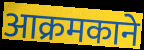
आक्रमकाने